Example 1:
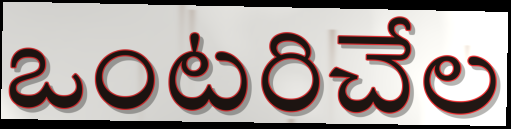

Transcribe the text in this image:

ఒంటరిచేల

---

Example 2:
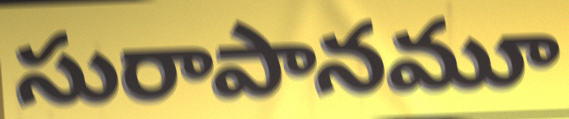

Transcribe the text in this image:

సురాపానమూ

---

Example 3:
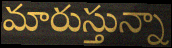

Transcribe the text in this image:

మారుస్తున్నా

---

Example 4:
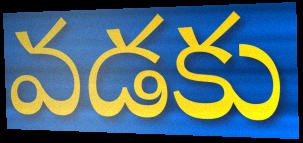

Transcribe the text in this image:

వడకు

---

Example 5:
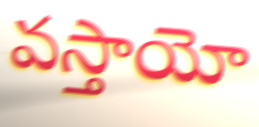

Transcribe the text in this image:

వస్తాయో